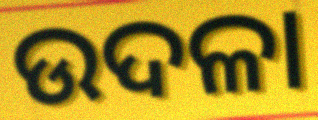
ଉଦଳା